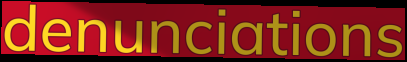
denunciations